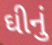
ઘીનું